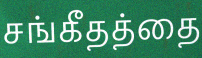
சங்கீதத்தை